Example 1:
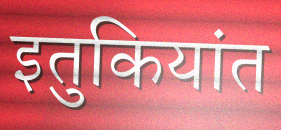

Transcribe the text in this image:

इतुकियांत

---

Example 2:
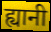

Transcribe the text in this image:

ह्यानी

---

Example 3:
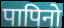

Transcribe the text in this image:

पापिनो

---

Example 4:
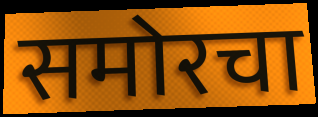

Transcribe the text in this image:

समोरचा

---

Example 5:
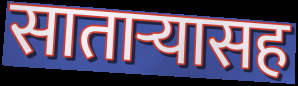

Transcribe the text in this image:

साताऱ्यासह